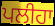
ਪਲੀਹਾ